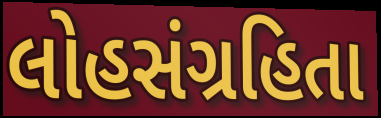
લોહસંગ્રહિતા